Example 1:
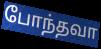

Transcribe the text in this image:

போந்தவா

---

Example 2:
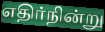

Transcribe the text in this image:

எதிர்நின்று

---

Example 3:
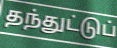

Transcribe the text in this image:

தந்துட்டுப்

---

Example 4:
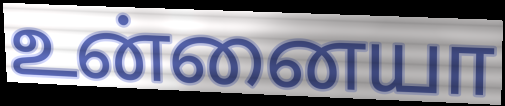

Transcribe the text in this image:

உன்னையா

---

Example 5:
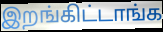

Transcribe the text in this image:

இறங்கிட்டாங்க